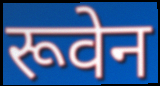
रूवेन